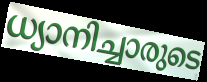
ധ്യാനിച്ചാരുടെ